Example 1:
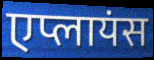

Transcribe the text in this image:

एप्लायंस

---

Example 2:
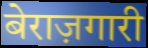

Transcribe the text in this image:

बेराज़गारी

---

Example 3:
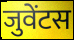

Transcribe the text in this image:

जुवेंटस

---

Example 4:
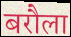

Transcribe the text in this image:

बरौला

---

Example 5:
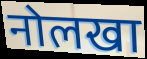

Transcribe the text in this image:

नोलखा